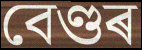
বেণ্ডৰ